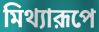
মিথ্যারূপে